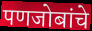
पणजोबांचे